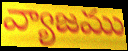
వ్యాజము